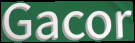
Gacor